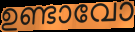
ഉണ്ടാവോ